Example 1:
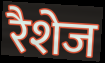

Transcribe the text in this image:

रैशेज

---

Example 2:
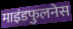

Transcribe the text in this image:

माइंडफुलनेस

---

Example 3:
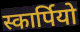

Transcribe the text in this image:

स्कार्पियो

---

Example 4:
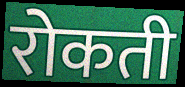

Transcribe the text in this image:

रोकती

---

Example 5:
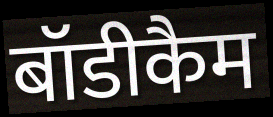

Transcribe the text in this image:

बॉडीकैम